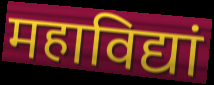
महाविद्यां